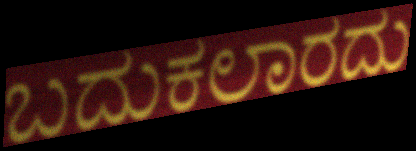
ಬದುಕಲಾರದು